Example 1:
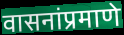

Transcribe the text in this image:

वासनांप्रमाणे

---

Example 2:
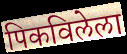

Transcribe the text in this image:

पिकविलेला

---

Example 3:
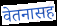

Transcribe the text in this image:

वेतनासह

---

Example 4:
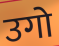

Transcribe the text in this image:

उगो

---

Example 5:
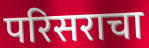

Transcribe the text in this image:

परिसराचा